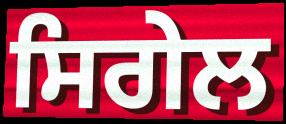
ਸਿਗੇਲ